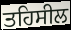
ਤਹਿਸੀਲ